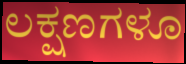
ಲಕ್ಷಣಗಳೂ